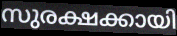
സുരക്ഷക്കായി